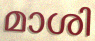
മാശി